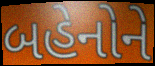
બહેનોને